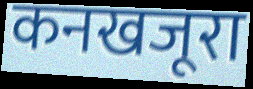
कनखजूरा